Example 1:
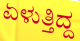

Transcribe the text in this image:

ಏಳುತ್ತಿದ್ದ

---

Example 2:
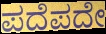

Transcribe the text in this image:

ಪದೆಪದೇ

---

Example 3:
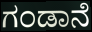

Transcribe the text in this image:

ಗಂಡಾನೆ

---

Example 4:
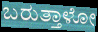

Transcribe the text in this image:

ಬರುತ್ತಾಳೋ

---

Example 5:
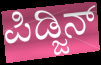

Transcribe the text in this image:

ಪಿಡ್ಜಿನ್